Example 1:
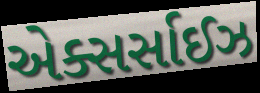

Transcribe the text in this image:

એક્સર્સાઈઝ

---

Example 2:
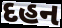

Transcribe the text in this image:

દહન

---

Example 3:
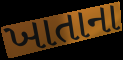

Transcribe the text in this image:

ખાતાના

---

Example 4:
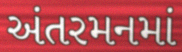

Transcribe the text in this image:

અંતરમનમાં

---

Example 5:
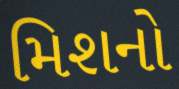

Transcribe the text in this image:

મિશનો